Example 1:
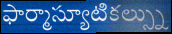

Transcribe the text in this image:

ఫార్మాస్యూటికల్స్ను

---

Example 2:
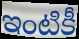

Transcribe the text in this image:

ఇంటికీ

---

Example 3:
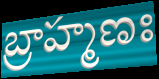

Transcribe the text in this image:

బ్రాహ్మణః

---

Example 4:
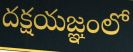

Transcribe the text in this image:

దక్షయజ్ఞంలో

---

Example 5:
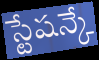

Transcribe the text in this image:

స్టేషన్కే